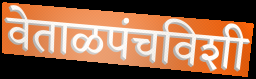
वेताळपंचविशी